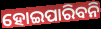
ହୋଇପାରିବନି